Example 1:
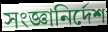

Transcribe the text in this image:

সংজ্ঞানির্দেশ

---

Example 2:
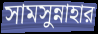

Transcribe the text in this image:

সামসুন্নাহার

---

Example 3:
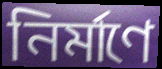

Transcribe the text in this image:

নির্মাণে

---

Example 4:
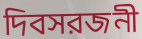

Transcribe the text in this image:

দিবসরজনী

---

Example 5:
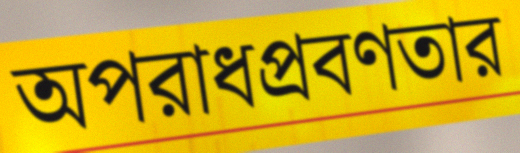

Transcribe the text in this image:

অপরাধপ্রবণতার